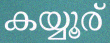
കയ്യൂര്